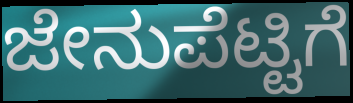
ಜೇನುಪೆಟ್ಟಿಗೆ